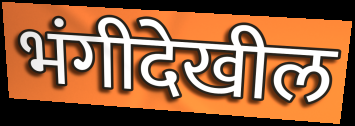
भंगीदेखील